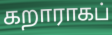
கறாராகப்